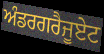
ਅੰਡਰਗਰੈਜੂਏਟ